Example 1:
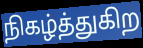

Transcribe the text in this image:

நிகழ்த்துகிற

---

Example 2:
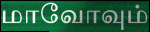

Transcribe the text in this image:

மாவோவும்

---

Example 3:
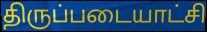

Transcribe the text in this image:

திருப்படையாட்சி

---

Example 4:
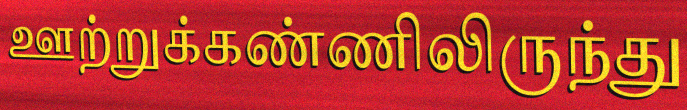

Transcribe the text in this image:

ஊற்றுக்கண்ணிலிருந்து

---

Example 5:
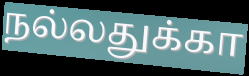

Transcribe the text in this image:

நல்லதுக்கா